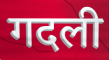
गदली